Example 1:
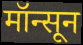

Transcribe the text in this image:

मॉन्सून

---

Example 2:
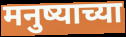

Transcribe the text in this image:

मनुष्याच्या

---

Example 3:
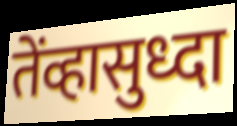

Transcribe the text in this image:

तेंव्हासुध्दा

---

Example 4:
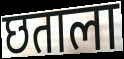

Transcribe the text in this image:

छताला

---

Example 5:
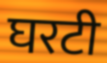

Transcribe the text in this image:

घरटी